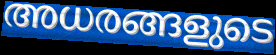
അധരങ്ങളുടെ